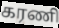
கரணி